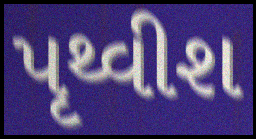
પૃથ્વીશ